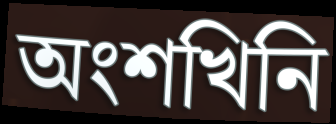
অংশখিনি